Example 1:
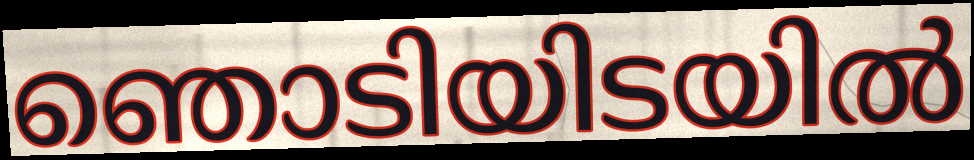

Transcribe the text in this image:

ഞൊടിയിടയിൽ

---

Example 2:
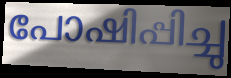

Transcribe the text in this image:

പോഷിപ്പിച്ചു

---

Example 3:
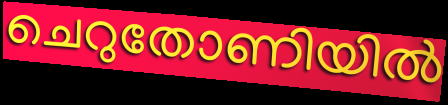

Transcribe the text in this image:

ചെറുതോണിയിൽ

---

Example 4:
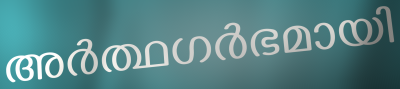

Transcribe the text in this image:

അർത്ഥഗർഭമായി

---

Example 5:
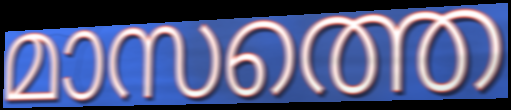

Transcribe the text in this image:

മാസത്തെ